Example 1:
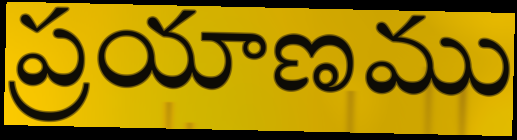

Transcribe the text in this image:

ప్రయాణము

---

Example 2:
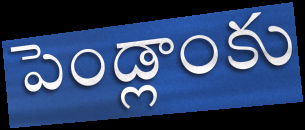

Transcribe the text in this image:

పెండ్లాంకు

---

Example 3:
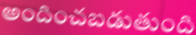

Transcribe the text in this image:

అందించబడుతుంది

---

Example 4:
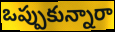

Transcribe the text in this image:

ఒప్పుకున్నారా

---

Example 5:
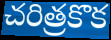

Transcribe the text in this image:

చరిత్రకొక